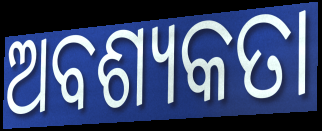
ଅବଶ୍ୟକତା